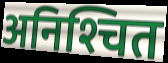
अनिश्चित